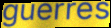
guerres